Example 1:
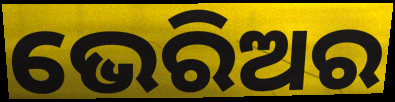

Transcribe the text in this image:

ଭେରିଅର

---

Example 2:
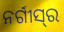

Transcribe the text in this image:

ନର୍ଗୀସ୍‍ର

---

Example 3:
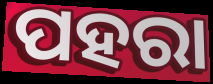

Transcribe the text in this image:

ପହରା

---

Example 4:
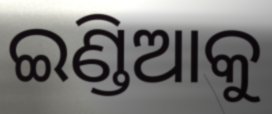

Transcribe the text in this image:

ଇଣ୍ଡିଆକୁ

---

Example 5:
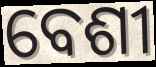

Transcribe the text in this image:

ବେଶୀ